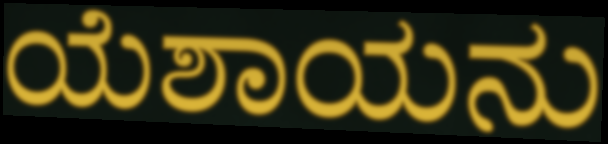
ಯೆಶಾಯನು